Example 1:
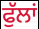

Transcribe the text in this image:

ਫੁੱਲਾਂ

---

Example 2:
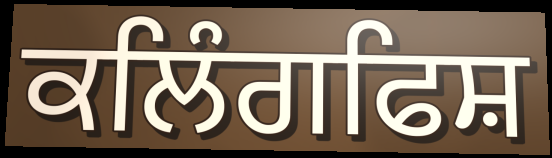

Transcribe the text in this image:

ਕਲਿੰਗਫਿਸ਼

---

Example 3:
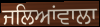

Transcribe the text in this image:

ਜਲਿਆਂਵਾਲਾ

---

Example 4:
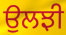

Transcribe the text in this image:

ਉਲਝੀ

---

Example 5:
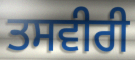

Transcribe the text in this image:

ਤਸਵੀਰੀ